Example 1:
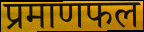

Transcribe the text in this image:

प्रमाणफल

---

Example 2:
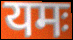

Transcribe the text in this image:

यमः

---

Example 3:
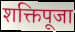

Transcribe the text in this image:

शक्तिपूजा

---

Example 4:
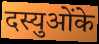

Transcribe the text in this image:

दस्युओंके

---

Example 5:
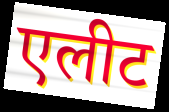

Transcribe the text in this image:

एलीट